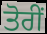
ਤੋਰੀਂ